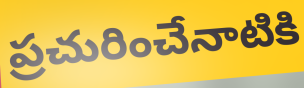
ప్రచురించేనాటికి